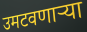
उमटवणार्‍या